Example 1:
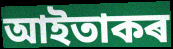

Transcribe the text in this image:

আইতাকৰ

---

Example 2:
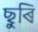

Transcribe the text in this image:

ছুৰি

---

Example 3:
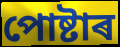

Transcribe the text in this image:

পোষ্টাৰ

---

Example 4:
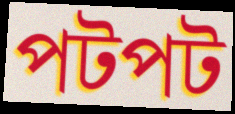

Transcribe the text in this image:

পটপট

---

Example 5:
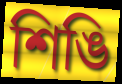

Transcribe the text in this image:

শিঙি